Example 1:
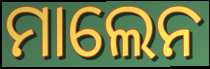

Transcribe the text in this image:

ମାଲେନ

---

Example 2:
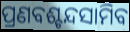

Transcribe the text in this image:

ପ୍ରଣବଶ୍ଚନ୍ଦସାମିବ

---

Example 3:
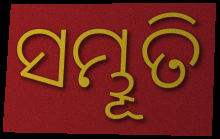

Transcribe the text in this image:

ସମ୍ଭୂତି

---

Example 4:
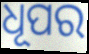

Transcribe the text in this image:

ଧୂପର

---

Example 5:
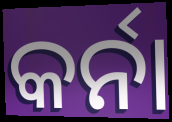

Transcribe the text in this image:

କର୍ନା